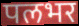
पलभर